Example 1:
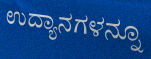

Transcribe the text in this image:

ಉದ್ಯಾನಗಳನ್ನೂ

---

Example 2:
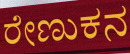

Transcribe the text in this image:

ರೇಣುಕನ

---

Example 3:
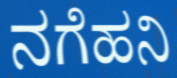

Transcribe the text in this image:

ನಗೆಹನಿ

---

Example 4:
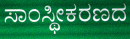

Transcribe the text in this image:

ಸಾಂಸ್ಥೀಕರಣದ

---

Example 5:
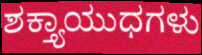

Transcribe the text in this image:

ಶಕ್ತ್ಯಾಯುಧಗಳು